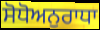
ਸੋਧੋਅਨੁਰਾਧਾ